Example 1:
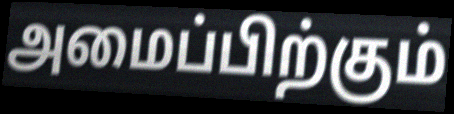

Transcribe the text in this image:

அமைப்பிற்கும்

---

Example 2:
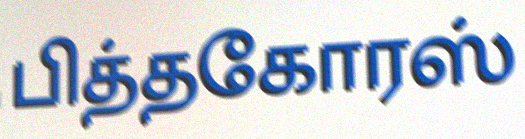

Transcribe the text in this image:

பித்தகோரஸ்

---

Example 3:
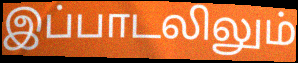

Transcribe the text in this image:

இப்பாடலிலும்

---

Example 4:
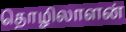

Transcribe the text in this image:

தொழிலாளன்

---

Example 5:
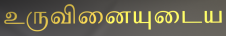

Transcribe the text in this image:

உருவினையுடைய